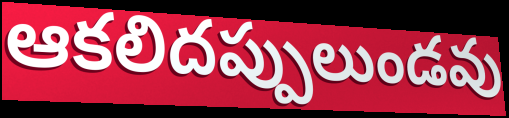
ఆకలిదప్పులుండవు